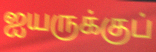
ஐயருக்குப்